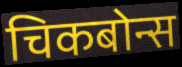
चिकबोन्स